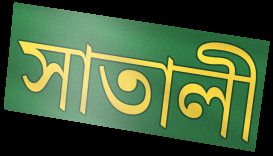
সাতালী